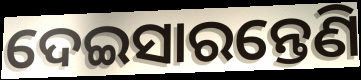
ଦେଇସାରନ୍ତେଣି